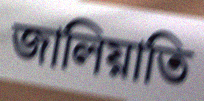
জালিয়াতি